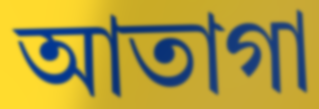
আতাগা